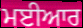
ਮਈਆਰ